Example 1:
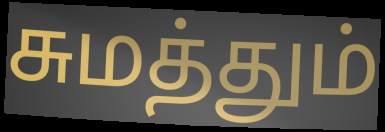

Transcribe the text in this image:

சுமத்தும்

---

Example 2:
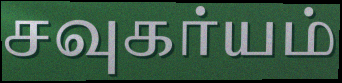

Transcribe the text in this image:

சவுகர்யம்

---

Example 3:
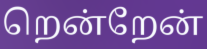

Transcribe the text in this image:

றென்றேன்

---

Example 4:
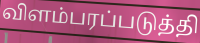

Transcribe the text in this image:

விளம்பரப்படுத்தி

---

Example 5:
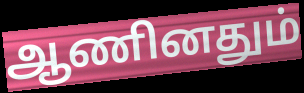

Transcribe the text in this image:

ஆணினதும்